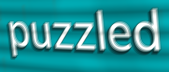
puzzled